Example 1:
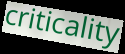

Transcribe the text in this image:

criticality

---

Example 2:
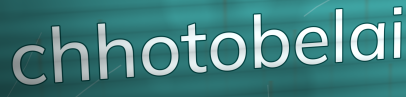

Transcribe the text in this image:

chhotobelai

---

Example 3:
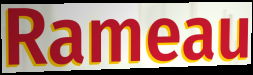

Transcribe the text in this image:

Rameau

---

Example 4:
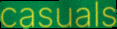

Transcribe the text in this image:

casuals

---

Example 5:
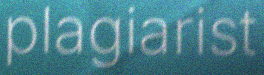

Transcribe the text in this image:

plagiarist